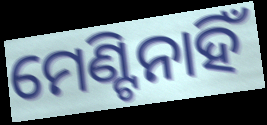
ମେଣ୍ଟିନାହିଁ